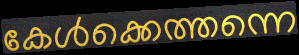
കേൾക്കെത്തന്നെ